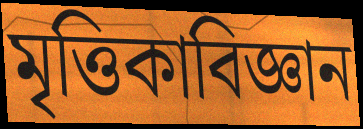
মৃত্তিকাবিজ্ঞান